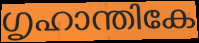
ഗൃഹാന്തികേ